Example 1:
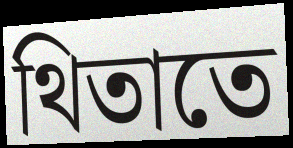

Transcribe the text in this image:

থিতাতে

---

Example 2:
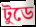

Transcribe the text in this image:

টুডে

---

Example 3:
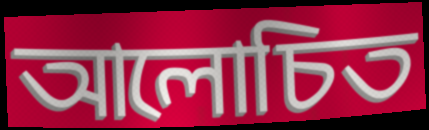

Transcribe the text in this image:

আলোচিত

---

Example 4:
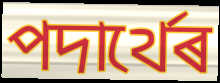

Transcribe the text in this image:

পদাৰ্থেৰ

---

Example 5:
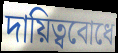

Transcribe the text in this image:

দায়িত্ববোধে